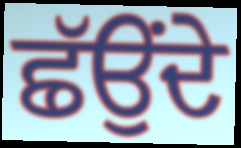
ਛੱਉਂਦੇ